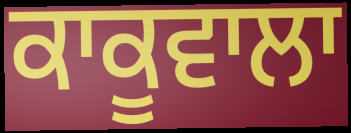
ਕਾਕੂਵਾਲਾ